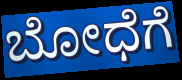
ಬೋಧೆಗೆ